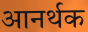
आनर्थक